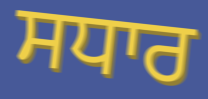
ਸਧਾਰ